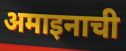
अमाइनाची